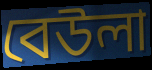
বেউলা